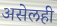
असेलही